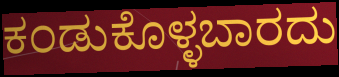
ಕಂಡುಕೊಳ್ಳಬಾರದು